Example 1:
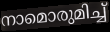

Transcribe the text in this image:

നാമൊരുമിച്ച്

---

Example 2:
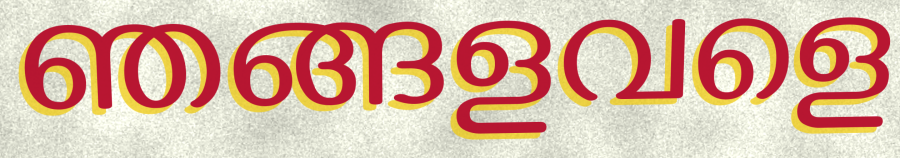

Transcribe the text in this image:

ഞങ്ങളവളെ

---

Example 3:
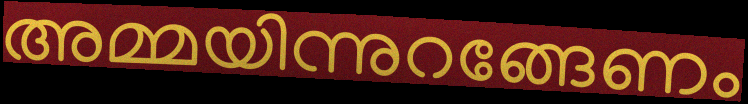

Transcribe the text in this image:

അമ്മയിന്നുറങ്ങേണം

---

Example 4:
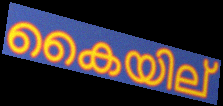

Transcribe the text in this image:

കൈയില്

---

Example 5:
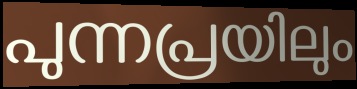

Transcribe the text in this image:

പുന്നപ്രയിലും